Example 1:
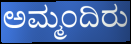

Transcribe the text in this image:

ಅಮ್ಮಂದಿರು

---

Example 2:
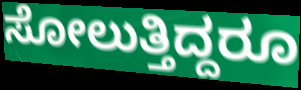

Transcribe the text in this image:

ಸೋಲುತ್ತಿದ್ದರೂ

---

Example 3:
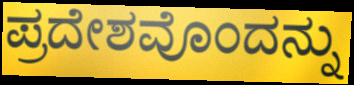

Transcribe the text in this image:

ಪ್ರದೇಶವೊಂದನ್ನು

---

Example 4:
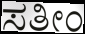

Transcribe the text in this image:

ಸತೀಂ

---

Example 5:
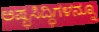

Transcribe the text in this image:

ಅಷ್ಟಸಿದ್ಧಿಗಳನ್ನೂ